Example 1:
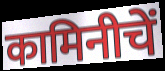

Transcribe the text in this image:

कामिनीचें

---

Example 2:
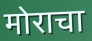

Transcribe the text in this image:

मोराचा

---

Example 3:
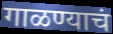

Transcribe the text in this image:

गाळण्याचं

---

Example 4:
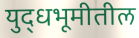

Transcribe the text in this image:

युद्धभूमीतील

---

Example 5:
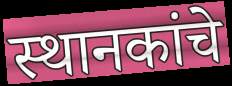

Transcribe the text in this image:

स्थानकांचे